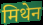
मिथेन